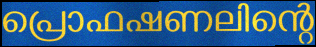
പ്രൊഫഷണലിന്റെ